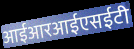
आईआरआईएसईटी